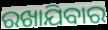
ରଖାଯିବାର